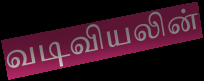
வடிவியலின்